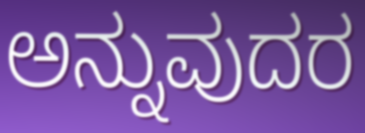
ಅನ್ನುವುದರ